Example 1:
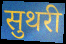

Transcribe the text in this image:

सुथरी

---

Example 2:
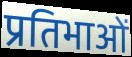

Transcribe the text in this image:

प्रतिभाओं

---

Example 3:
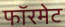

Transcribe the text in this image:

फॉरमेट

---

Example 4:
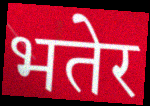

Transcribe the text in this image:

भतेर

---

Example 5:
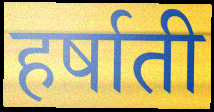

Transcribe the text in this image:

हर्षाती